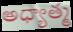
అధ్యాత్మ